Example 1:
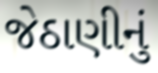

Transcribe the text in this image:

જેઠાણીનું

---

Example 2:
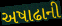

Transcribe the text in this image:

અષાઢાની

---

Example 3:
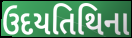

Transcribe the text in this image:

ઉદયતિથિના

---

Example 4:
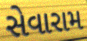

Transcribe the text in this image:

સેવારામ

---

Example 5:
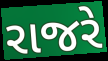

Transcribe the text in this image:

રાજરે